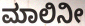
ಮಾಲಿನೀ